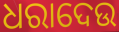
ଧରାଦେଉ